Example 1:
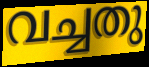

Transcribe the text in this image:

വച്ചതു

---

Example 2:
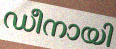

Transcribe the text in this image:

ഡീനായി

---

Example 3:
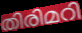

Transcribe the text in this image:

തിരിമറി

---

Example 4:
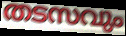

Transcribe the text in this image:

തടസവും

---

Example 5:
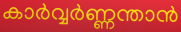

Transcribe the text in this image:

കാർവ്വർണ്ണന്താൻ